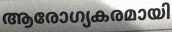
ആരോഗ്യകരമായി